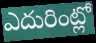
ఎదురింట్లో